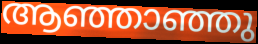
ആഞ്ഞാഞ്ഞു